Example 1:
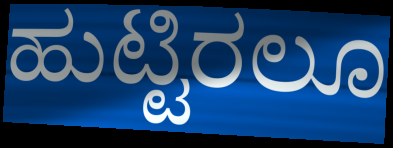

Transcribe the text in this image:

ಹುಟ್ಟಿರಲೂ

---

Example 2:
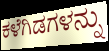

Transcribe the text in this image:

ಕಳೆಗಿಡಗಳನ್ನು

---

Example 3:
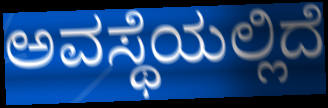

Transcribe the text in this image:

ಅವಸ್ಥೆಯಲ್ಲಿದೆ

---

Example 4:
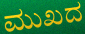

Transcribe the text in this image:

ಮುಖದ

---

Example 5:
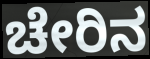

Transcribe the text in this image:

ಚೇರಿನ